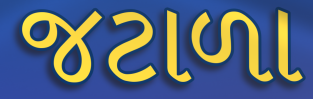
જટાળા